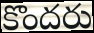
కొందరు